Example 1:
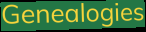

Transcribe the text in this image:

Genealogies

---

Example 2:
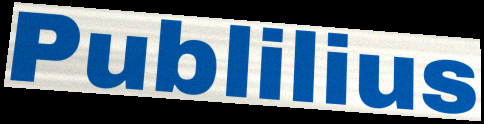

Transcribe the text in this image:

Publilius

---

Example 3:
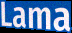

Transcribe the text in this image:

Lama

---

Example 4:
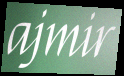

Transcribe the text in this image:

ajmir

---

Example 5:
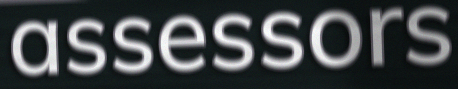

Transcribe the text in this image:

assessors